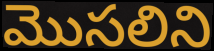
మొసలిని